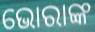
ଭୋରାଙ୍କ